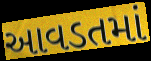
આવડતમાં